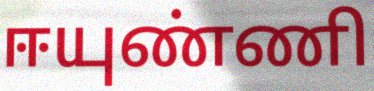
ஈயுண்ணி